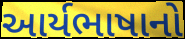
આર્યભાષાનો